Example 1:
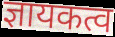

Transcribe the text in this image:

ज्ञायकत्व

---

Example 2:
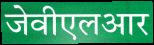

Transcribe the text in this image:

जेवीएलआर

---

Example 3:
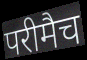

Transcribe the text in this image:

परीमैच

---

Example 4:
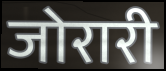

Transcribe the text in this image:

जोरारी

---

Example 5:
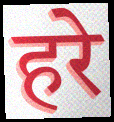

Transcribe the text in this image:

हरे